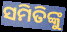
ସମିତିଙ୍କୁ